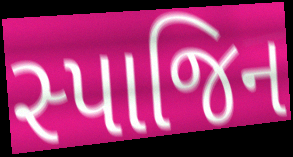
સ્પાજિન